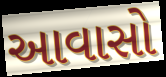
આવાસો